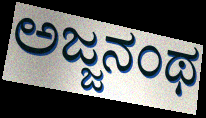
ಅಜ್ಜನಂಥ